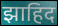
झाहिद